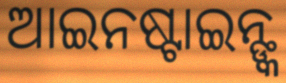
ଆଇନଷ୍ଟାଇନ୍ଙ୍କ